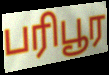
பரிபூர